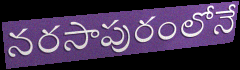
నరసాపురంలోనే